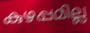
കുഴപ്പമില്ല